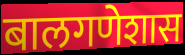
बालगणेशास